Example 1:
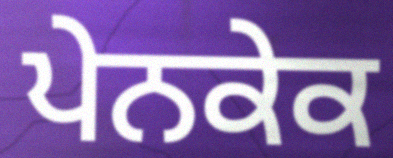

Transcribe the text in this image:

ਪੇਨਕੇਕ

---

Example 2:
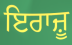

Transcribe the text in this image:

ਇਰਾਜ਼ੂ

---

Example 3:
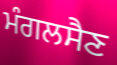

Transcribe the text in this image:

ਮੰਗਲਸੈਣ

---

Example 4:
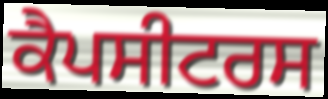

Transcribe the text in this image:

ਕੈਪਸੀਟਰਸ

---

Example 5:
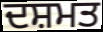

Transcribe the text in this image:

ਦਸ਼ਮਤ